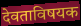
देवताविषयक